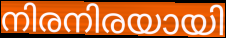
നിരനിരയായി